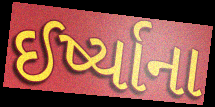
ઈર્ષ્યાના